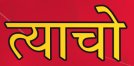
त्याचो